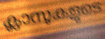
ക്ലാസുകളുടെ